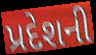
પ્રદેશની